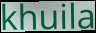
khuila